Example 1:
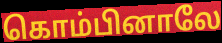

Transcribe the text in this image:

கொம்பினாலே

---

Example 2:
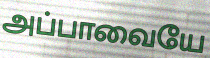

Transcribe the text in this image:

அப்பாவையே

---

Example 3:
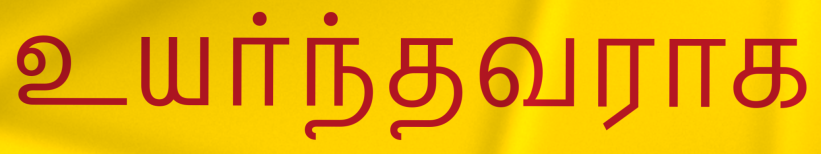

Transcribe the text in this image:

உயர்ந்தவராக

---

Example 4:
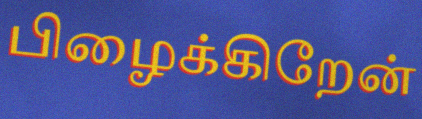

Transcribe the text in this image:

பிழைக்கிறேன்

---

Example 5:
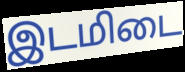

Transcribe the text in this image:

இடமிடை